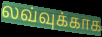
லவ்வுக்காக